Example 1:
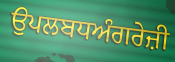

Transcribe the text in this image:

ਉਪਲਬਧਅੰਗਰੇਜ਼ੀ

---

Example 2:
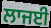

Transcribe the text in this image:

ਲਾਜਈ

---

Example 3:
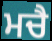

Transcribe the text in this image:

ਮਚੈ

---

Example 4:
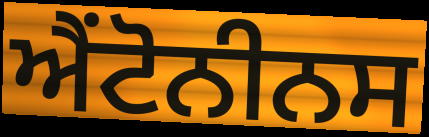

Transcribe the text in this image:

ਐਂਟੋਨੀਨਸ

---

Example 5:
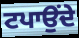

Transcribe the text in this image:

ਟਪਾਉਂਦੇ